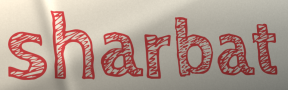
sharbat